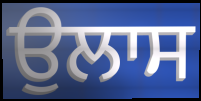
ਉਲਾਸ